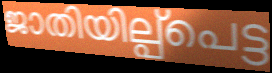
ജാതിയില്പ്പെട്ട